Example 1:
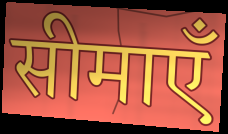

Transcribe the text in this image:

सीमाएँ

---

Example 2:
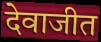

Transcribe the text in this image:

देवाजीत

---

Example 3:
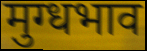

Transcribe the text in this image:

मुग्धभाव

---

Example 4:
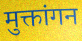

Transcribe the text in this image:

मुक्तांगन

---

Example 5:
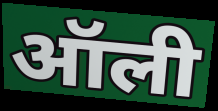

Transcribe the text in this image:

ऑली